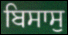
ਬਿਸਾਸੁ